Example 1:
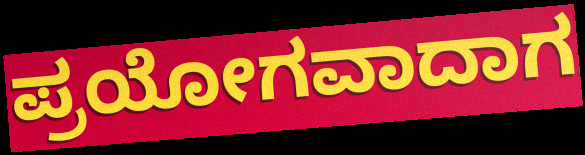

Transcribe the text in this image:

ಪ್ರಯೋಗವಾದಾಗ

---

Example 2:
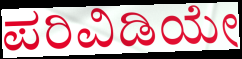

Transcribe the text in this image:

ಪರಿವಿಡಿಯೇ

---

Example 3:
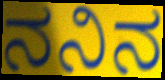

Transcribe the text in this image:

ನನಿನ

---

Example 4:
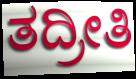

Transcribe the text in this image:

ತದ್ರೀತಿ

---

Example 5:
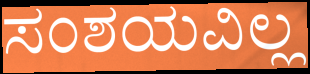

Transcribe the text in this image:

ಸಂಶಯವಿಲ್ಲ